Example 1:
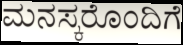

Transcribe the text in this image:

ಮನಸ್ಕರೊಂದಿಗೆ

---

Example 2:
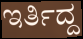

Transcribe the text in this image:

ಇರ್ತಿದ್ದ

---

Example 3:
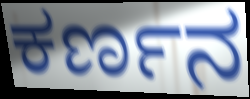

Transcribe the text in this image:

ಕರ್ಣನ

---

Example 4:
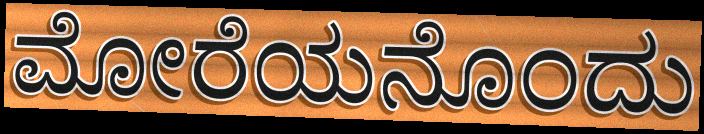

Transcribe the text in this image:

ಮೋರೆಯನೊಂದು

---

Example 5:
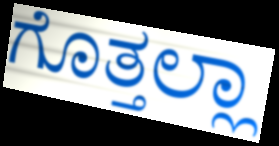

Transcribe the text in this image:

ಗೊತ್ತಲ್ಲಾ